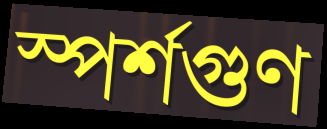
স্পর্শগুণ